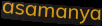
asamanya